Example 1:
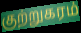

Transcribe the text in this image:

குற்றுகரம்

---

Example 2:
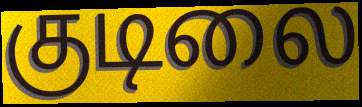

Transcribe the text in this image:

குடிலை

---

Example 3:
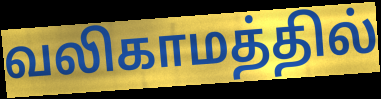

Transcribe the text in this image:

வலிகாமத்தில்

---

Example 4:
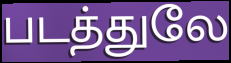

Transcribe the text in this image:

படத்துலே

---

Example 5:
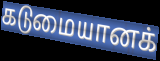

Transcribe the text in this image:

கடுமையானக்